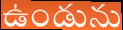
ఉండును